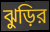
ঝুড়ির